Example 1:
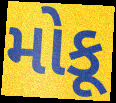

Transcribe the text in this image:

મોકૂ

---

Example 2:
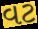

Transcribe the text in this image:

વટ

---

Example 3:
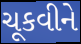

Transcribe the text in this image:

ચૂકવીને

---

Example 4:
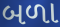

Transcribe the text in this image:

બળા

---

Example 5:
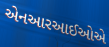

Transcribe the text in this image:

એનઆરઆઈઓએ